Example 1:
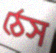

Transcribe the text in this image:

ঠেস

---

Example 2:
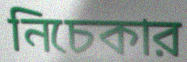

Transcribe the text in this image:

নিচেকার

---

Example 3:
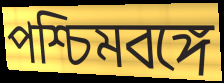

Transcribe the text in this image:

পশ্চিমবঙ্গে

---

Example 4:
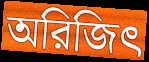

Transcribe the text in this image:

অরিজিৎ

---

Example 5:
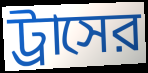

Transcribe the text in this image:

ট্রাসের